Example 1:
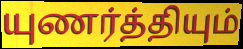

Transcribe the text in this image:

யுணர்த்தியும்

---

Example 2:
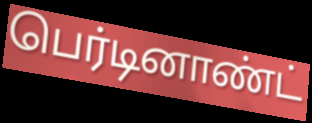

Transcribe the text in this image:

பெர்டினாண்ட்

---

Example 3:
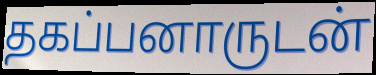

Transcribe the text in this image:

தகப்பனாருடன்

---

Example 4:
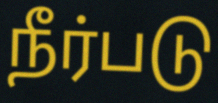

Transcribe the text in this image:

நீர்படு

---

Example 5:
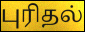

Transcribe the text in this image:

புரிதல்